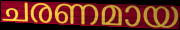
ചരണമായ